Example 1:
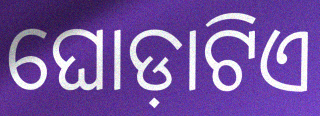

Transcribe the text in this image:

ଘୋଡ଼ାଟିଏ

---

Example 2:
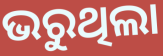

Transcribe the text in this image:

ଭରୁଥିଲା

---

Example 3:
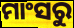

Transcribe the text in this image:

ମାଂସରୁ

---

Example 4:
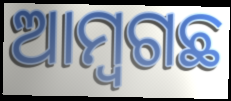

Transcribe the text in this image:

ଆମ୍ବଗଛ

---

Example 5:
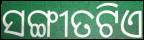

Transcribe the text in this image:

ସଙ୍ଗୀତଟିଏ